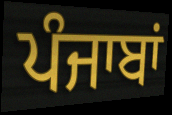
ਪੰਜਾਬਾਂ